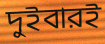
দুইবারই